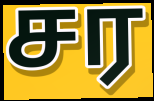
சர